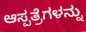
ಆಸ್ಪತ್ರೆಗಳನ್ನು